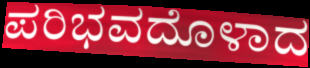
ಪರಿಭವದೊಳಾದ